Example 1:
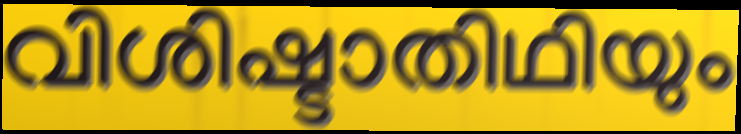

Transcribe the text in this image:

വിശിഷ്ടാതിഥിയും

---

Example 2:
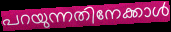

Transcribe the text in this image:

പറയുന്നതിനേക്കാൾ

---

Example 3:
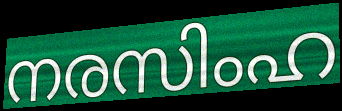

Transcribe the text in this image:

നരസിംഹ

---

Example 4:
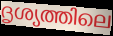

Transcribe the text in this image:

ദൃശ്യത്തിലെ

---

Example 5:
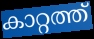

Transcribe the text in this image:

കാറ്റത്ത്